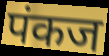
पंकज